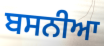
ਬਸਨੀਆ